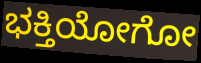
ಭಕ್ತಿಯೋಗೋ